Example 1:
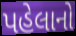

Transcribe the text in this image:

પહેલાનો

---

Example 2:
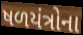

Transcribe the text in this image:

ષળયંત્રોના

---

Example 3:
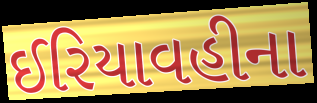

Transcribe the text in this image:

ઈરિયાવહીના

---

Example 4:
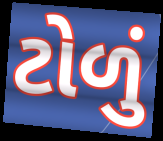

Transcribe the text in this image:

ટોળું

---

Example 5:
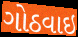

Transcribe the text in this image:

ગોઠવાઇ